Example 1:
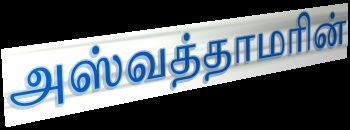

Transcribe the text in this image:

அஸ்வத்தாமரின்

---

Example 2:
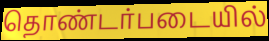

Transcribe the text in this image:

தொண்டர்படையில்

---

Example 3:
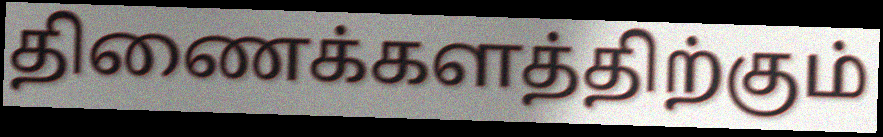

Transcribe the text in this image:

திணைக்களத்திற்கும்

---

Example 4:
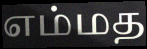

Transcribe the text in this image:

எம்மத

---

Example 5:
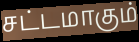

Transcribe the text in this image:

சட்டமாகும்